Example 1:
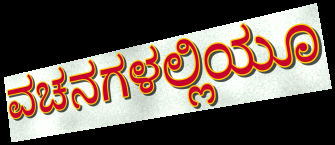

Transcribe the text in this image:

ವಚನಗಳಲ್ಲಿಯೂ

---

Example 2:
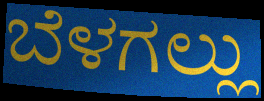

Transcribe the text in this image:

ಬೆಳಗಲ್ಲು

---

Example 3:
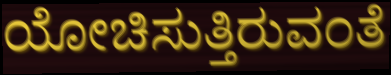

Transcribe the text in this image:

ಯೋಚಿಸುತ್ತಿರುವಂತೆ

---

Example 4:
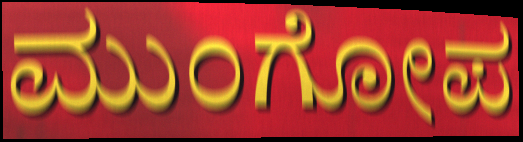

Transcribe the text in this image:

ಮುಂಗೋಪ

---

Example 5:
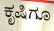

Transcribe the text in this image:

ಕೃಷಿಗೂ